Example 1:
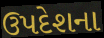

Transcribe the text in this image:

ઉપદેશના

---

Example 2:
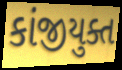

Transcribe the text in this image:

કાંજીયુક્ત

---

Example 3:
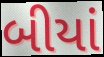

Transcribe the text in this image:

બીયાં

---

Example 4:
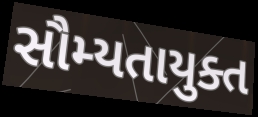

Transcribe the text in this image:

સૌમ્યતાયુક્ત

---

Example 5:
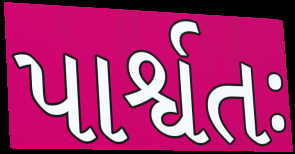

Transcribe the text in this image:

પાર્શ્વતઃ